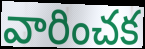
వారించక